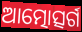
ଆତ୍ମୋତ୍ସର୍ଗ